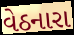
વેઠનારા